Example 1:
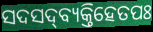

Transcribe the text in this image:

ସଦସଦ୍‌ବ୍ୟକ୍ତିହେତପଃ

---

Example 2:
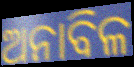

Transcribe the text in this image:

ଅନାବିଳ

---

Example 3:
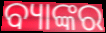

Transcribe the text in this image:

ବ୍ୟାଙ୍କର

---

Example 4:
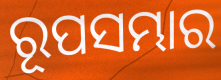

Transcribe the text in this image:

ରୂପସମ୍ଭାର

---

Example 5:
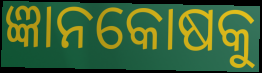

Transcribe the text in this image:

ଜ୍ଞାନକୋଷକୁ